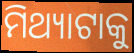
ମିଥ୍ୟାଟାକୁ